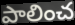
పాలించ